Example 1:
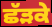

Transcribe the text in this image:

ਛੱੜਕੇ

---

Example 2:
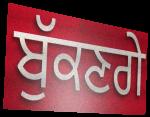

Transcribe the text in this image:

ਬੁੱਕਣਗੇ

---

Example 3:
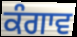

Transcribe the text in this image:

ਕੰਗਾਵ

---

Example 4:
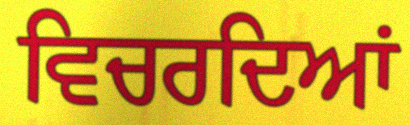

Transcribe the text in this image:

ਵਿਚਰਦਿਆਂ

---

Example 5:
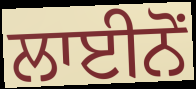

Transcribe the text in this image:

ਲਾਈਨੋਂ